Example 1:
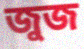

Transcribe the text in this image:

জুজ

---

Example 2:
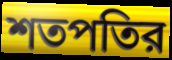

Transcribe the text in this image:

শতপতির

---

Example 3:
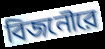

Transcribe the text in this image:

বিজনৌরে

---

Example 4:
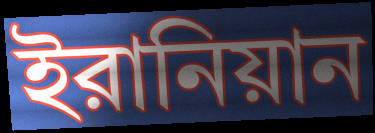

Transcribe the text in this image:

ইরানিয়ান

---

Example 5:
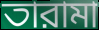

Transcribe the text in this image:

তারামা